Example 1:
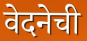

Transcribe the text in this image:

वेदनेची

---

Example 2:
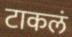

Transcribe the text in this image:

टाकलं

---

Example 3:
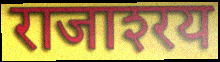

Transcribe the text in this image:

राजाश्रय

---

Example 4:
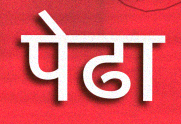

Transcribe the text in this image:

पेढा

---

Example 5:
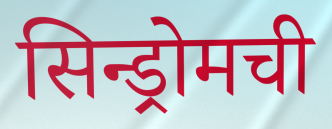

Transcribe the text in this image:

सिन्ड्रोमची